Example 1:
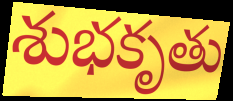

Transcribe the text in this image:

శుభకృతు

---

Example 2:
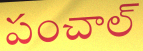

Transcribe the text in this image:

పంచాల్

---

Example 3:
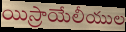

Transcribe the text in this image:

యిస్రాయేలీయుల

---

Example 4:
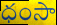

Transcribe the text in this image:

ధంసా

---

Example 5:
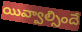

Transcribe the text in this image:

యివ్వాల్సిందే